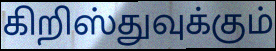
கிறிஸ்துவுக்கும்